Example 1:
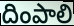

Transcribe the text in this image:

దింపాలి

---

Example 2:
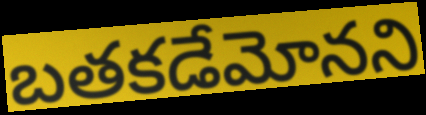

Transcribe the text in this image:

బతకడేమోనని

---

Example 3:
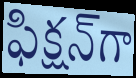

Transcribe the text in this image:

ఫిక్షన్‌గా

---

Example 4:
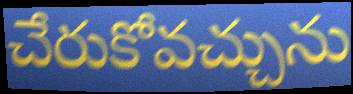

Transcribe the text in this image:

చేరుకోవచ్చును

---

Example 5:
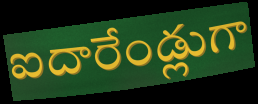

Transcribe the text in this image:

ఐదారేండ్లుగా